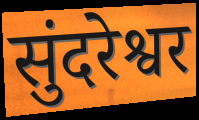
सुंदरेश्वर